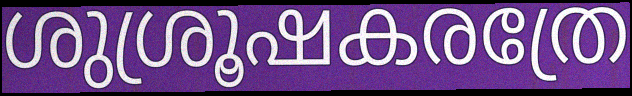
ശുശ്രൂഷകരത്രേ